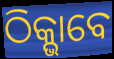
ଠିକ୍ଭାବେ